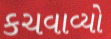
કચવાવ્યો